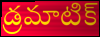
డ్రమాటిక్